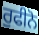
ਰੁਫੀਨੋ